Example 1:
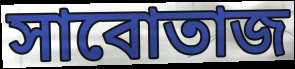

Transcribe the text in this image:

সাবোতাজ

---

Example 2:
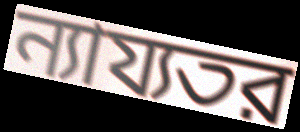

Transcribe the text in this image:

ন্যায্যতর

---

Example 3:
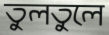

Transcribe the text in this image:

তুলতুলে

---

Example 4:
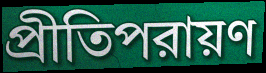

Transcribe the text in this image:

প্রীতিপরায়ণ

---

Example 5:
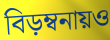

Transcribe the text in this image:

বিড়ম্বনায়ও